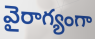
వైరాగ్యంగా